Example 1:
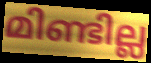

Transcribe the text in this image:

മിണ്ടില്ല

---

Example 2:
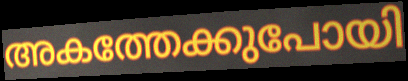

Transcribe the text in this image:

അകത്തേക്കുപോയി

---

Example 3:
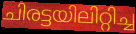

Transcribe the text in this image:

ചിരട്ടയിലിറ്റിച്ച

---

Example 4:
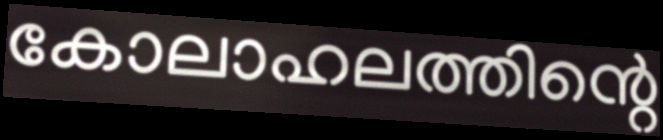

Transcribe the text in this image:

കോലാഹലത്തിന്റെ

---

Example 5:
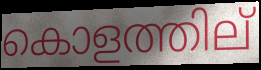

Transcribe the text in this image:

കൊളത്തില്